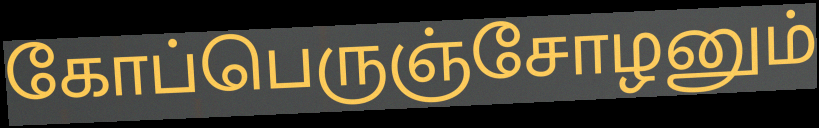
கோப்பெருஞ்சோழனும்